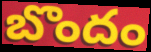
బొందం